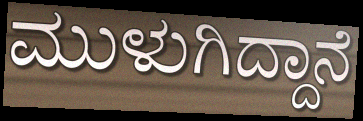
ಮುಳುಗಿದ್ದಾನೆ